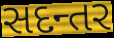
સદન્તર